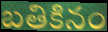
బతికినం